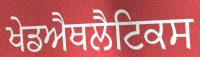
ਖੇਡਐਥਲੈਟਿਕਸ